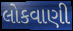
લોકવાણી